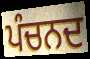
ਪੰਚਨਦ